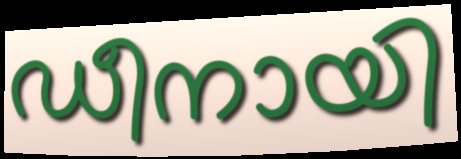
ഡീനായി